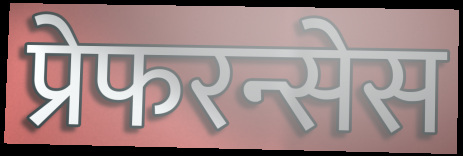
प्रेफरन्सेस